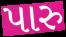
પારુ